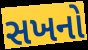
સખનો